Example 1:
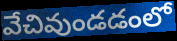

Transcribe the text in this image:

వేచివుండడంలో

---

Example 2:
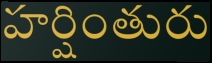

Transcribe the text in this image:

హర్షింతురు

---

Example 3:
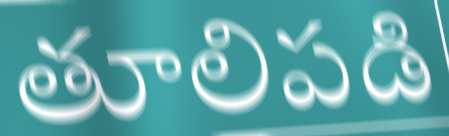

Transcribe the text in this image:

తూలిపడి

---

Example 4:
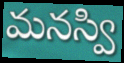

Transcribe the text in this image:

మనస్వి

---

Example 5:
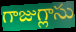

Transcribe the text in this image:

గాజుగ్లాసు